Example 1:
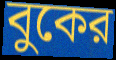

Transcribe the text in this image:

বুকের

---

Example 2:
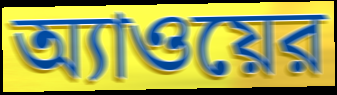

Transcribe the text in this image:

অ্যাওয়ের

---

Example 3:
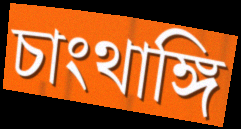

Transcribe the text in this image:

চাংথাঙ্গি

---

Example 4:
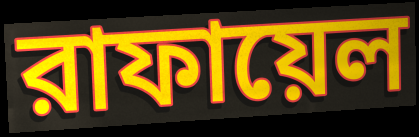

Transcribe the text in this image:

রাফায়েল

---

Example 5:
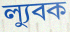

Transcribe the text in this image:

ল্যুবক